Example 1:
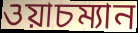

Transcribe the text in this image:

ওয়াচম্যান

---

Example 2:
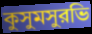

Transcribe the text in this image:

কুসুমসুরভি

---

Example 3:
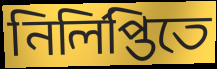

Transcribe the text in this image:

নির্লিপ্তিতে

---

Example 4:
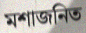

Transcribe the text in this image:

মশাজনিত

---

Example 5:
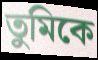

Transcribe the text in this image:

তুমিকে